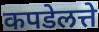
कपडेलत्ते